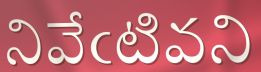
నివేఁటివని